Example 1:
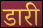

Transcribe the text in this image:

डारी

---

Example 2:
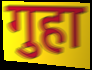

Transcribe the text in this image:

गुहा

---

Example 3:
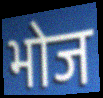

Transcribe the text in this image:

भोज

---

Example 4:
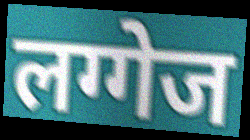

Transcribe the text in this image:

लग्गेज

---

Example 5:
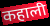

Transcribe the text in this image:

कहाली